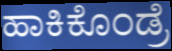
ಹಾಕಿಕೊಂಡ್ರೆ